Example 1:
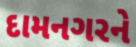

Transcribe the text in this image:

દામનગરને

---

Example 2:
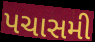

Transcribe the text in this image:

પચાસમી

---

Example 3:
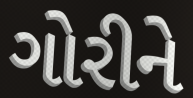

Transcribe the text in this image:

ગોરીને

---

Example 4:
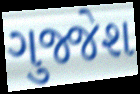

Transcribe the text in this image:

ગુજ્જેશ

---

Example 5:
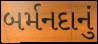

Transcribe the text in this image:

બર્મનદાનું